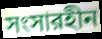
সংসারহীন